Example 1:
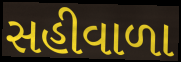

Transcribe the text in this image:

સહીવાળા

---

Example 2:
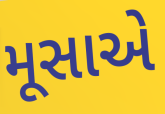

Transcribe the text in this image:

મૂસાએ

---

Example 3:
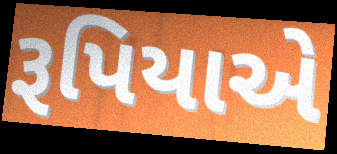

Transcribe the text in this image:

રૂપિયાએ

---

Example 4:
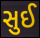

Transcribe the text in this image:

સુઈ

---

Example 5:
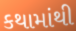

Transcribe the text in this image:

કથામાંથી